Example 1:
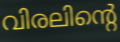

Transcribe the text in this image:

വിരലിന്റെ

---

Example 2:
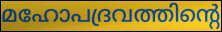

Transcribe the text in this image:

മഹോപദ്രവത്തിന്റെ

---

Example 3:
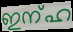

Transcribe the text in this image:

ഇന്ഹ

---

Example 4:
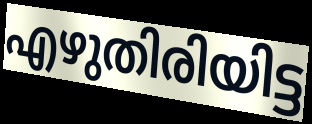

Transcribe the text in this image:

എഴുതിരിയിട്ട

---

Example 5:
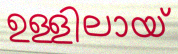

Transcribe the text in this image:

ഉള്ളിലായ്